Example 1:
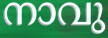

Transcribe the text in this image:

നാവു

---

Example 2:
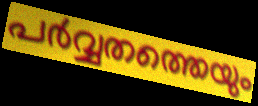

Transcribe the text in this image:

പർവ്വതത്തെയും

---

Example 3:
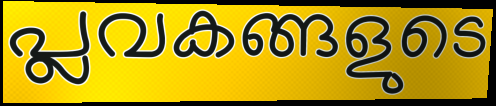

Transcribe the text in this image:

പ്ലവകങ്ങളുടെ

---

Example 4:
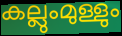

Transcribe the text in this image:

കല്ലുംമുള്ളും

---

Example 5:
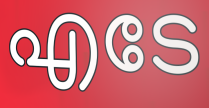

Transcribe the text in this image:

എടേ